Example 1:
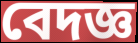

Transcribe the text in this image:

বেদজ্ঞ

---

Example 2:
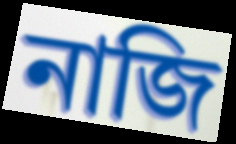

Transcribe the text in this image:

নাজি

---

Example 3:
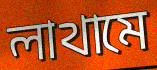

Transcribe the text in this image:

লাথামে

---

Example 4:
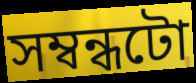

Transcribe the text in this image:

সম্বন্ধটো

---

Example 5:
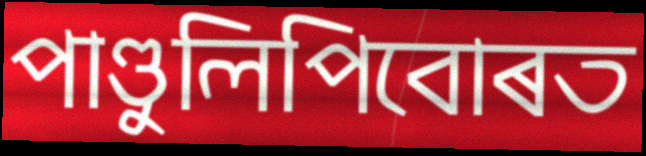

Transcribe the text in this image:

পাণ্ডুলিপিবোৰত